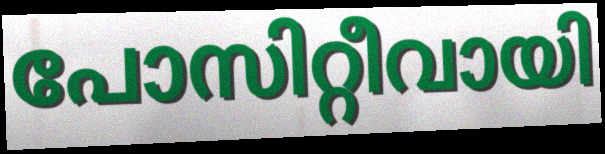
പോസിറ്റീവായി